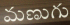
మణుగు